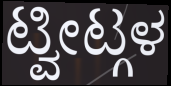
ಟ್ವೀಟ್ಗಳ